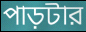
পাড়টার